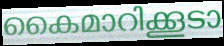
കൈമാറിക്കൂടാ